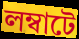
লম্বাটে